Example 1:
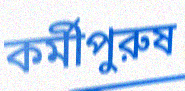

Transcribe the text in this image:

কর্মীপুরুষ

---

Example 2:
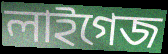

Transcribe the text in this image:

লাইগেজ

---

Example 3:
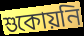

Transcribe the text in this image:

শুকোয়নি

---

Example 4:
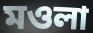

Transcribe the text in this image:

মওলা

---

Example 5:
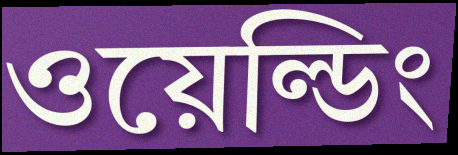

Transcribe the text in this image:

ওয়েল্ডিং